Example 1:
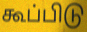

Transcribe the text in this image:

கூப்பிடு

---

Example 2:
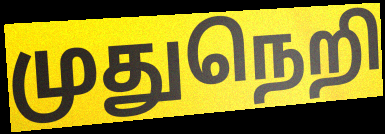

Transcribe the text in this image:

முதுநெறி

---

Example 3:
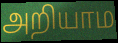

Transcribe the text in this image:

அறியாம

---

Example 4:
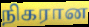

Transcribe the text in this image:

நிகரான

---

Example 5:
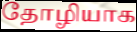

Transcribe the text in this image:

தோழியாக